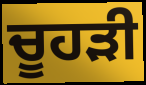
ਚੂਹੜੀ